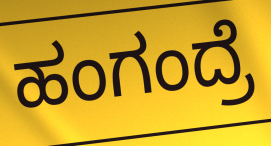
ಹಂಗಂದ್ರೆ